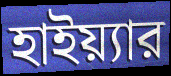
হাইয়্যার